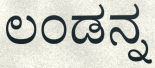
ಲಂಡನ್ನ